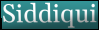
Siddiqui